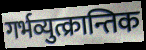
गर्भव्युत्क्रान्तिक